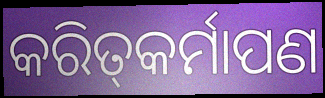
କରିତ୍‌କର୍ମାପଣ